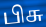
பிசு